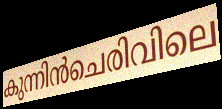
കുന്നിൻചെരിവിലെ